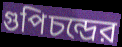
গুপিচন্দ্রের